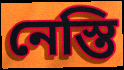
নেস্তি